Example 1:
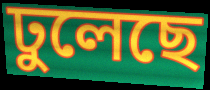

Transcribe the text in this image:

ঢুলেছে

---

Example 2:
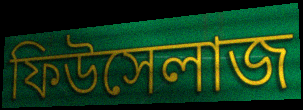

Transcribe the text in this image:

ফিউসেলাজ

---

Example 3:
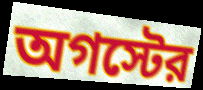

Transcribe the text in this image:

অগস্টের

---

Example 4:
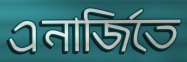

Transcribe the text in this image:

এনার্জিতে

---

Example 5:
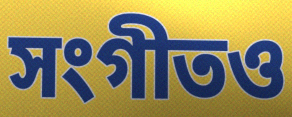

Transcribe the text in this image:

সংগীতও